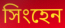
সিংহেন